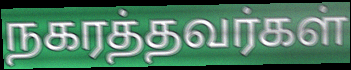
நகரத்தவர்கள்